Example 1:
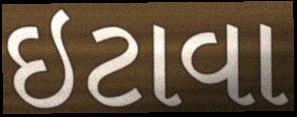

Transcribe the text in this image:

ઇટાવા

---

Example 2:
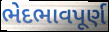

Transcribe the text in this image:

ભેદભાવપૂર્ણ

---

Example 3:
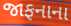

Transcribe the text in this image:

જાફનાના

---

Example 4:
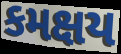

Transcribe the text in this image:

કમક્ષય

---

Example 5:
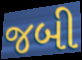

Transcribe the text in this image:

જબી